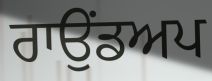
ਰਾਉਂਡਅਪ